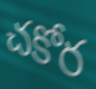
చకోర